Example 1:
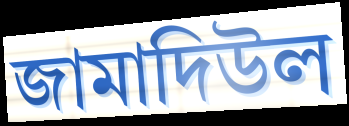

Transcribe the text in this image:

জামাদিউল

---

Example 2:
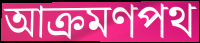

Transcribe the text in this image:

আক্রমণপথ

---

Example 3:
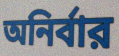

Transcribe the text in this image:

অনির্বার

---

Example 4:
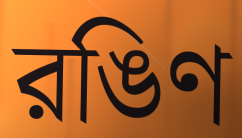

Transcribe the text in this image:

রঙিণ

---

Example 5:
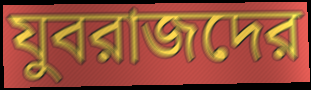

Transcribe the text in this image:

যুবরাজদের